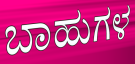
ಬಾಹುಗಳ